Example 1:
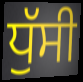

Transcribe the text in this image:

ਧੁੱਸੀ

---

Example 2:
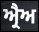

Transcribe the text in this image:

ਅ੍ਰੈਅ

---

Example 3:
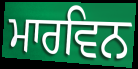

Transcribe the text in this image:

ਮਾਰਵਿਨ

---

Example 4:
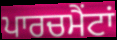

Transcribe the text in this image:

ਪਾਰਚਮੈਂਟਾਂ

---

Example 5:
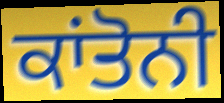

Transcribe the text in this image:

ਕਾਂਤੋਨੀ